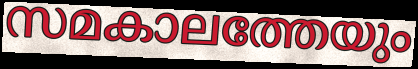
സമകാലത്തേയും